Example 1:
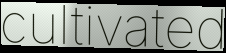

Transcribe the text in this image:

cultivated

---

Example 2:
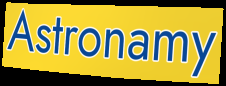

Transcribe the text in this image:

Astronamy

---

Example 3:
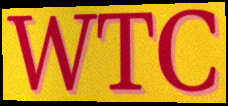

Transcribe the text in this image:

WTC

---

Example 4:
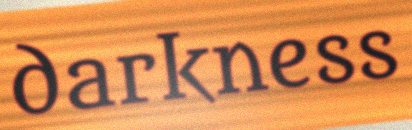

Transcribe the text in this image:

darkness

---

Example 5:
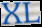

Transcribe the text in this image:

XL